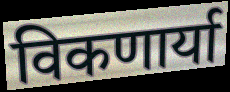
विकणार्या